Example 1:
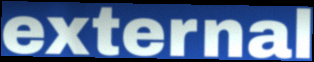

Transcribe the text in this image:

external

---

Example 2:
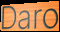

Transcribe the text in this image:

Daro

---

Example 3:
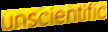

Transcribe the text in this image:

unscientific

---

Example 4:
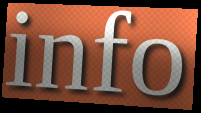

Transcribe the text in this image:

info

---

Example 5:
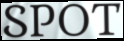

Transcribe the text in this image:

SPOT